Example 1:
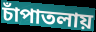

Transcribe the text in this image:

চাঁপাতলায়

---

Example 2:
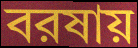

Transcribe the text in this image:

বরষায়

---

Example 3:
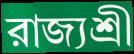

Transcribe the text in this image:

রাজ্যশ্রী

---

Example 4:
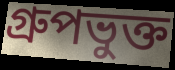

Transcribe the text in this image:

গ্রুপভুক্ত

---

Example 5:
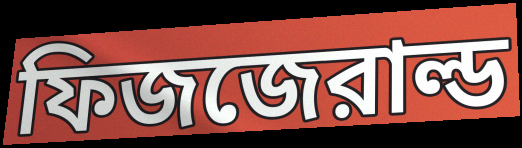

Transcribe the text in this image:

ফিজজেরাল্ড